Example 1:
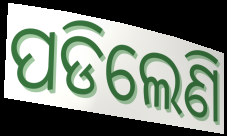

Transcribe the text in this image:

ପଡିଲେଣି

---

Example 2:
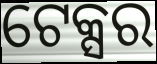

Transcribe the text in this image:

ଟେକ୍ସର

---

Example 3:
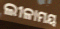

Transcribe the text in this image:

ଲୀଳାମୟ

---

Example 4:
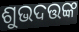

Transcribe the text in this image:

ଶୁଭଦତ୍ତଙ୍କ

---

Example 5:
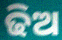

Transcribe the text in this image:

ଢିଅ